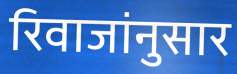
रिवाजांनुसार